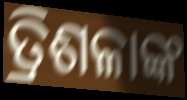
ତ୍ରିଶଳାଙ୍କ